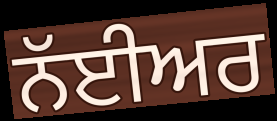
ਨੱਈਅਰ